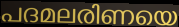
പദമലരിണയെ